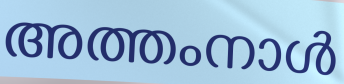
അത്തംനാൾ